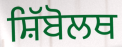
ਸ਼ਿੱਬੋਲਥ